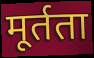
मूर्तता